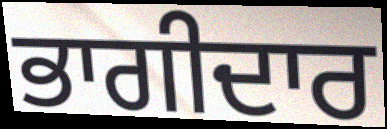
ਭਾਗੀਦਾਰ